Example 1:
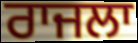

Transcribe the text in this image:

ਰਾਜਲਾ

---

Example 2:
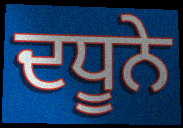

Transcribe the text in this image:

ਦਧੂਨੇ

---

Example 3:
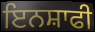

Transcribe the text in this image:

ਇਨਸ਼ਾਫੀ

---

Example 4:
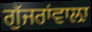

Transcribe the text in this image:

ਗੁੱਜਰਾਂਵਾਲ਼ਾ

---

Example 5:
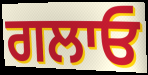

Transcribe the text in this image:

ਗਲਾਓ